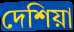
দেশিয়া